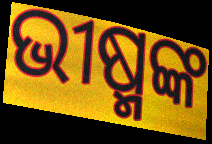
ଭୀଷ୍ମଙ୍କ